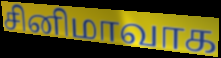
சினிமாவாக